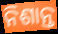
ନିଶାନ୍ତ